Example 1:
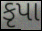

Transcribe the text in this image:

કૃપા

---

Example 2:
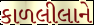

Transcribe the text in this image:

કાળલીલાને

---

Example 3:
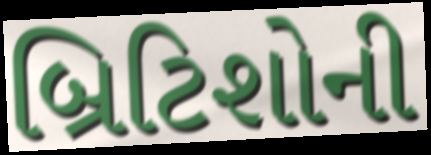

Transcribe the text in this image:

બ્રિટિશોની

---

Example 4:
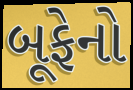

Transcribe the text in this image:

બૂફેનો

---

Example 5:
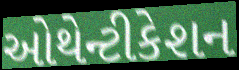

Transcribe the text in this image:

ઓથેન્ટીકેશન